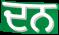
ਦਨ